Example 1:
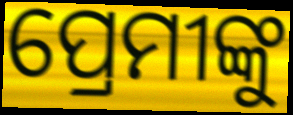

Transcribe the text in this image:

ପ୍ରେମୀଙ୍କୁ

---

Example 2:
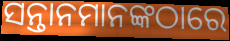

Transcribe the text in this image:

ସନ୍ତାନମାନଙ୍କଠାରେ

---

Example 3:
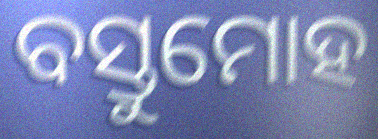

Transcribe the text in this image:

ବସ୍ତୁମୋହ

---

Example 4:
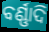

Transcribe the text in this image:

ବର୍ଣ୍ଣାଦି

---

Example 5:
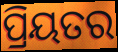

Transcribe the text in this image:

ପ୍ରିୟତର